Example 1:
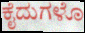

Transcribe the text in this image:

ಕೈದುಗಳೊ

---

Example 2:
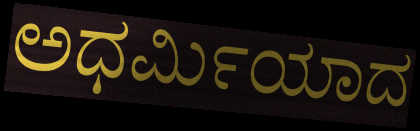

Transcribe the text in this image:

ಅಧರ್ಮಿಯಾದ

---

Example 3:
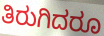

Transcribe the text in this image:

ತಿರುಗಿದರೂ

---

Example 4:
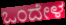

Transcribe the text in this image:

ಒಂದೇಳ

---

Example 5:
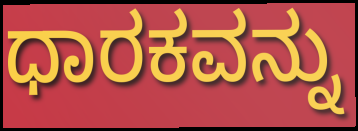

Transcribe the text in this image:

ಧಾರಕವನ್ನು